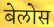
बेलोस